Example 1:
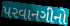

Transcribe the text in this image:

પરવાનગીનો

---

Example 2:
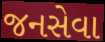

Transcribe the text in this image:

જનસેવા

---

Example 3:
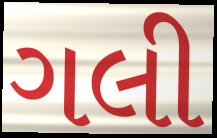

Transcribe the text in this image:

ગલી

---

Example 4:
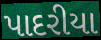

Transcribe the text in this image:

પાદરીયા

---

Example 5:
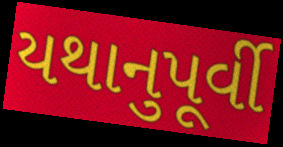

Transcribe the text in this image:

યથાનુપૂર્વી